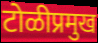
टोळीप्रमुख